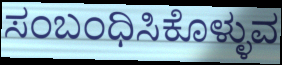
ಸಂಬಂಧಿಸಿಕೊಳ್ಳುವ